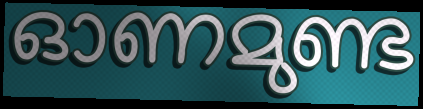
ഓണമുണ്ട